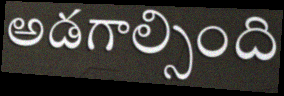
అడగాల్సింది